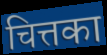
चित्तका